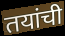
तयांची